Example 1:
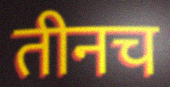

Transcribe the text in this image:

तीनच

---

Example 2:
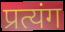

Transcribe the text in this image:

प्रत्यंग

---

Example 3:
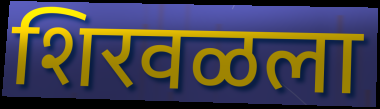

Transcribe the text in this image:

शिरवळला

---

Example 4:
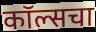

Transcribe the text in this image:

कॉल्सचा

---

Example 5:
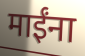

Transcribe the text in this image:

माईंना